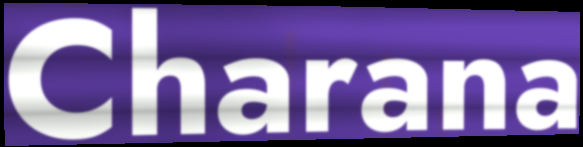
Charana